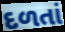
દળતાં